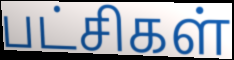
பட்சிகள்